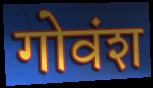
गोवंश